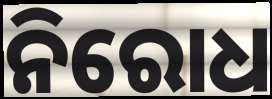
ନିରୋଧ